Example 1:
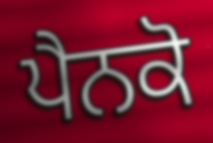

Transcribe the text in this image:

ਪੈਨਕੋ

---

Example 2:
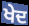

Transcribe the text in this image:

ਖੇਦ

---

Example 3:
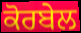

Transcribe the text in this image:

ਕੋਰਬੇਲ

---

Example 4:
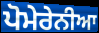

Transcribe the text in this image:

ਪੋਮੇਰੇਨੀਆ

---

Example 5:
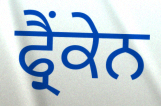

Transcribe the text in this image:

ਫ੍ਰੈਂਕੇਨ